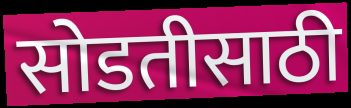
सोडतीसाठी